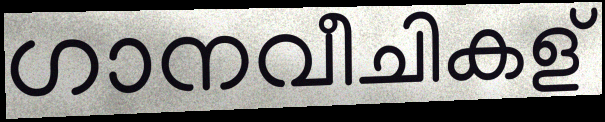
ഗാനവീചികള്